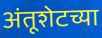
अंतूशेटच्या